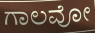
ಗಾಲವೋ